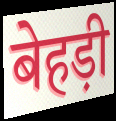
बेहड़ी